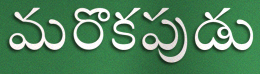
మరొకపుడు